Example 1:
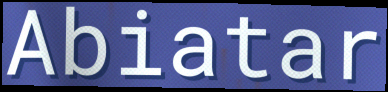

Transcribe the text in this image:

Abiatar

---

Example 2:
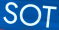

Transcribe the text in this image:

SOT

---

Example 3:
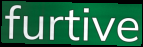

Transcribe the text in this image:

furtive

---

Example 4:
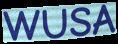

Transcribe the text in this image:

WUSA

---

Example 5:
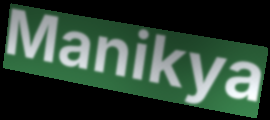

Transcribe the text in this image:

Manikya